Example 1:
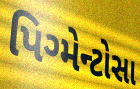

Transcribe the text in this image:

પિગ્મેન્ટોસા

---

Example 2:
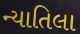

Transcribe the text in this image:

ન્યાતિલા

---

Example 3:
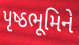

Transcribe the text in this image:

પૃષ્ઠભૂમિને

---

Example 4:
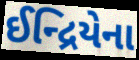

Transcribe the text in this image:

ઈન્દ્રિયેના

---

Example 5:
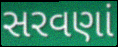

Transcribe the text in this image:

સરવણાં